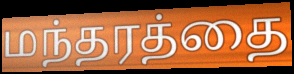
மந்தரத்தை